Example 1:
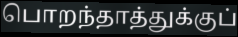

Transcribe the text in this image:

பொறந்தாத்துக்குப்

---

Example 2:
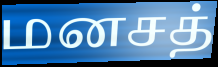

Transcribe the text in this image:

மனசத்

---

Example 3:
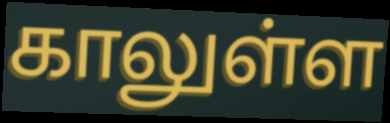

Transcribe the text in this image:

காலுள்ள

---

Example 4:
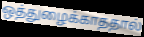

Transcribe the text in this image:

ஒத்துழைக்காததால்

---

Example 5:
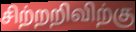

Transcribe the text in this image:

சிற்றறிவிற்கு